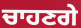
ਚਾਹਣਗੇ